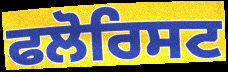
ਫਲੋਰਿਸਟ